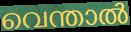
വെന്താൽ